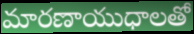
మారణాయుధాలతో